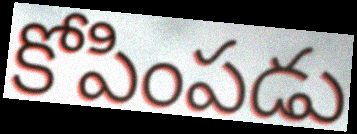
కోపింపడు